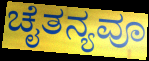
ಚೈತನ್ಯವೂ